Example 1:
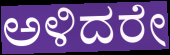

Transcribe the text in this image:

ಅಳಿದರೇ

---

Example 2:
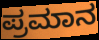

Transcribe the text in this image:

ಪ್ರಮಾನ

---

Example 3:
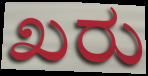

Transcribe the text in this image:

ಖರು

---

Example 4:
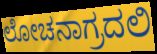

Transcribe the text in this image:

ಲೋಚನಾಗ್ರದಲಿ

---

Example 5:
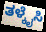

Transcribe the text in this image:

ತಳ್ಕೈಸಿ